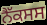
ਨੈੱਕਸਸ